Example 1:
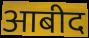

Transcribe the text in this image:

आबीद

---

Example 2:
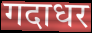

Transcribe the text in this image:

गदाधर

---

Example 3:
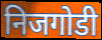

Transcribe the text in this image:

निजगोडी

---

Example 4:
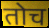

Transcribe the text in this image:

तोच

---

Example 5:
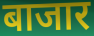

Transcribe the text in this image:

बाजार